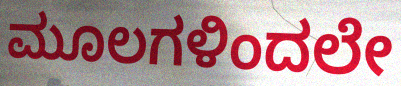
ಮೂಲಗಳಿಂದಲೇ